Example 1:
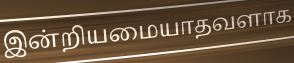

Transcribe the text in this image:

இன்றியமையாதவளாக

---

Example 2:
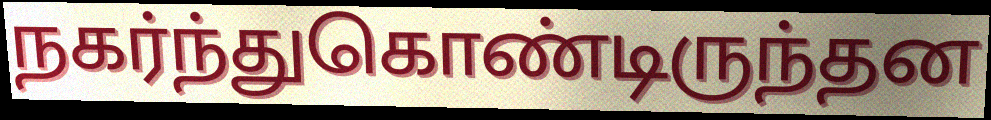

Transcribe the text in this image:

நகர்ந்துகொண்டிருந்தன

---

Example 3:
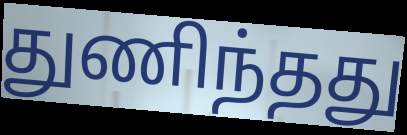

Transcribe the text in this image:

துணிந்தது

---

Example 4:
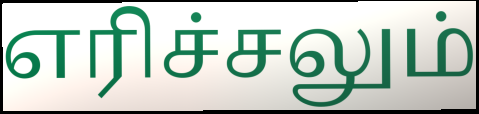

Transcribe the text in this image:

எரிச்சலும்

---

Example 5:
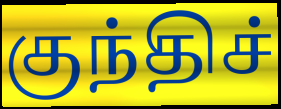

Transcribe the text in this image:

குந்திச்